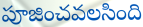
పూజించవలసింది